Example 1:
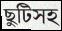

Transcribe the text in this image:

ছুটিসহ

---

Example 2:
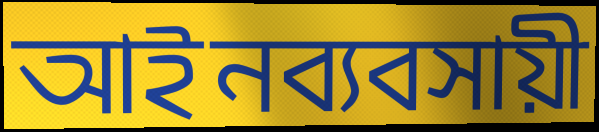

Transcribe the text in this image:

আইনব্যবসায়ী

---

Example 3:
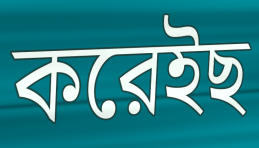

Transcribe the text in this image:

করেইছ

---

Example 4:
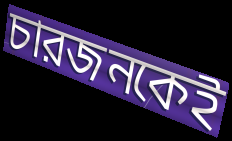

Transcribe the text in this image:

চারজনকেই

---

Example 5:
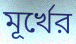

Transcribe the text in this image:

মূর্খের